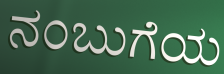
ನಂಬುಗೆಯ